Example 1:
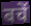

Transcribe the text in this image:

बचें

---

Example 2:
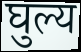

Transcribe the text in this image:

घुल्य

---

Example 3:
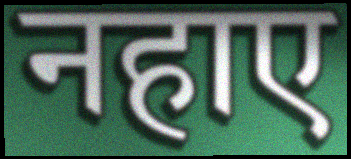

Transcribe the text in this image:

नहाए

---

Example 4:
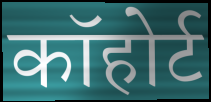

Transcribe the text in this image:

कॉहोर्ट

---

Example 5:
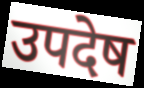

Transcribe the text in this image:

उपदेष